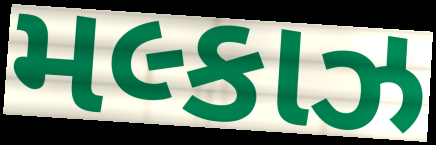
મલ્કાઝ